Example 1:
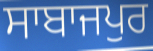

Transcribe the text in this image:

ਸਾਬਾਜਪੁਰ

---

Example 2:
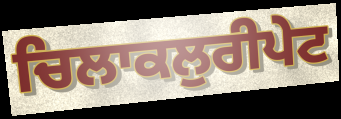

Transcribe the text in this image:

ਚਿਲਾਕਲੁਰੀਪੇਟ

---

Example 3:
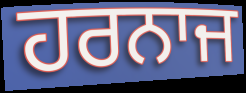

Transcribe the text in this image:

ਹਰਨਾਜ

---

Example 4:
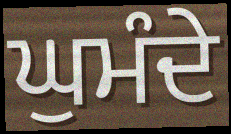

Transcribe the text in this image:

ਘੁਮੰਦੇ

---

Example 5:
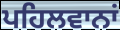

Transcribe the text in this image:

ਪਹਿਲਵਾਨਾਂ